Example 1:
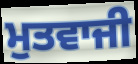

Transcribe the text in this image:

ਮੁਤਵਾਜੀ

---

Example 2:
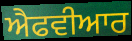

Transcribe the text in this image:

ਐਫਵੀਆਰ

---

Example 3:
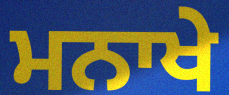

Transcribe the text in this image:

ਮਨਾਖੇ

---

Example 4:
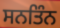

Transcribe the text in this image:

ਸਨਤਿੰਨ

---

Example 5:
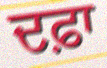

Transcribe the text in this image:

ਦਫ਼ਾ